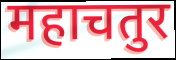
महाचतुर